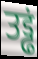
उड्ढं